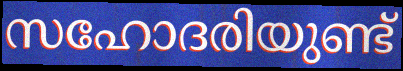
സഹോദരിയുണ്ട്